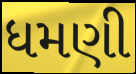
ધમણી